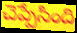
చెప్పేసింది